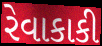
રેવાકાકી